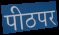
पीठपर